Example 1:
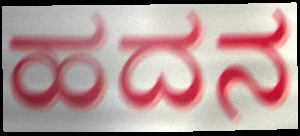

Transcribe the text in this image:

ಹದನ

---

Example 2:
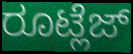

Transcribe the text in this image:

ರೂಟ್ಲೆಜ್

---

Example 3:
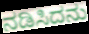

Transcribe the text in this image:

ನಡಿಸಿದನು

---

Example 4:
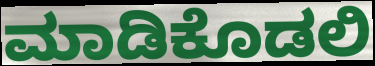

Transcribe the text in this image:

ಮಾಡಿಕೊಡಲಿ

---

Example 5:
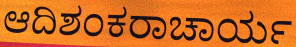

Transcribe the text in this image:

ಆದಿಶಂಕರಾಚಾರ್ಯ